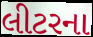
લીટરના